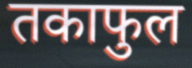
तकाफुल